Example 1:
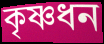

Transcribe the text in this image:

কৃষ্ণধন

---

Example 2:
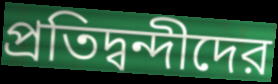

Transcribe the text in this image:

প্রতিদ্বন্দীদের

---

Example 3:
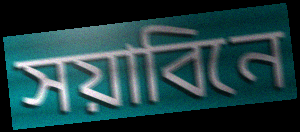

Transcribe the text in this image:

সয়াবিনে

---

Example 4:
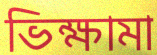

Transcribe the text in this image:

ভিক্ষামা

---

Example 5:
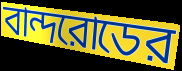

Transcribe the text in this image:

বান্দরোডের